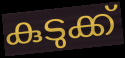
കുടുക്ക്